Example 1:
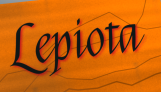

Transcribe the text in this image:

Lepiota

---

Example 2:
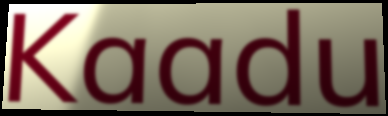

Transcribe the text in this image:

Kaadu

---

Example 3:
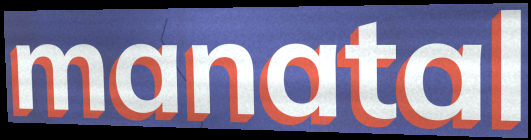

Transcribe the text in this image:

manatal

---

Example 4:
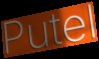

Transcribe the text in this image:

Putel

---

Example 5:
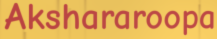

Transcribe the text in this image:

Akshararoopa